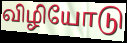
விழியோடு